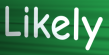
Likely